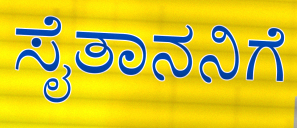
ಸೈತಾನನಿಗೆ